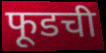
फूडची